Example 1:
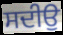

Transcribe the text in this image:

ਸਦੀਉ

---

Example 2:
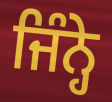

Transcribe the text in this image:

ਜਿੰਨ੍ਹੇ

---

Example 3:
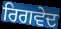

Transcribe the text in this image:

ਰਿਗਵੇਦ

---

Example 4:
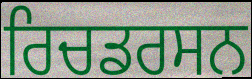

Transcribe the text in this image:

ਰਿਚਡਰਸਨ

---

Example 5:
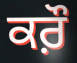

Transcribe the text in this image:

ਕਰ਼ੌ